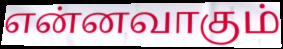
என்னவாகும்